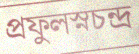
প্রফুলস্নচন্দ্র